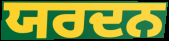
ਯਰਦਨ